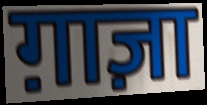
ग़ाज़ा